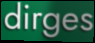
dirges